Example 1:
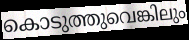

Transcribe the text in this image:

കൊടുത്തുവെങ്കിലും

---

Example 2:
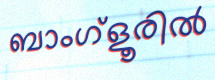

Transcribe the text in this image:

ബാംഗ്ളൂരിൽ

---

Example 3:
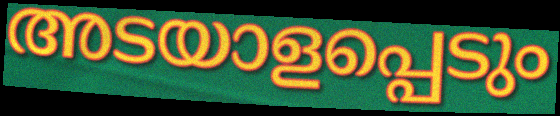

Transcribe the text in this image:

അടയാളപ്പെടും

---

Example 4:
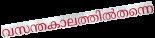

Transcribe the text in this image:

വസന്തകാലത്തിൽതന്നെ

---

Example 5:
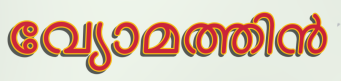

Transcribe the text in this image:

വ്യോമത്തിൻ